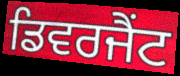
ਡਿਵਰਜੈਂਟ